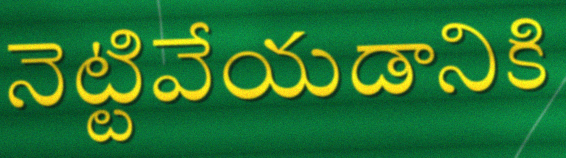
నెట్టివేయడానికి